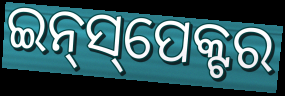
ଇନ୍‍ସ୍‌ପେକ୍ଟର